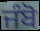
ਜੰਬੋ